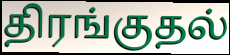
திரங்குதல்